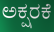
ಅಕ್ಷರಕೆ